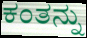
ಕಂತನ್ನು